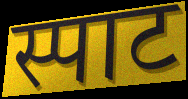
स्पाट